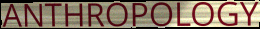
ANTHROPOLOGY